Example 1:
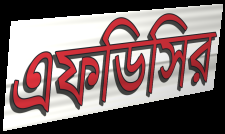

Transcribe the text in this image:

এফডিসির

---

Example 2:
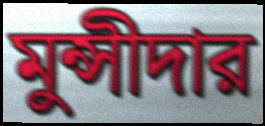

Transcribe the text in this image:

মুন্সীদার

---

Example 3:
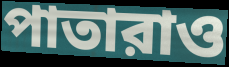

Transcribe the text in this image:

পাতারাও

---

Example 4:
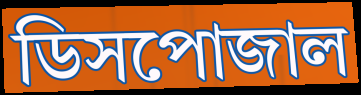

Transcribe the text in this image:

ডিসপোজাল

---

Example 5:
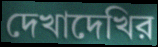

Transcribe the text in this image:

দেখাদেখির